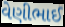
વેણીભાઈ